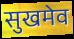
सुखमेव